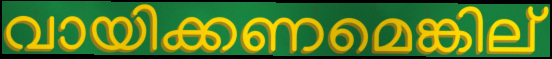
വായിക്കണമെങ്കില്